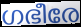
ഗഭീരേ